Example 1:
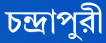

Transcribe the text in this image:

চন্দ্রাপুরী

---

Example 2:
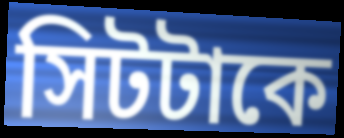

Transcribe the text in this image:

সিটটাকে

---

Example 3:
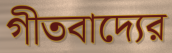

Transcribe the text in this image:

গীতবাদ্যের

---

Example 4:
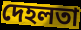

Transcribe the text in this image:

দেহলতা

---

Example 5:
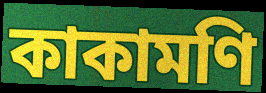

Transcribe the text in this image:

কাকামণি